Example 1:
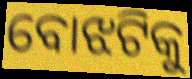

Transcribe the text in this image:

ବୋଝଟିକୁ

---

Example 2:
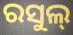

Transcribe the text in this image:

ରସୁଲ୍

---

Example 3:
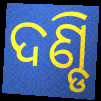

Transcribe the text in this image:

ଦଣ୍ଡି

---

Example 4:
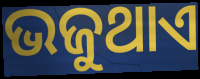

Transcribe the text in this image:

ଭଜୁଥାଏ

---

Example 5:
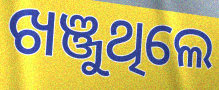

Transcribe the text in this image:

ଖଞ୍ଜୁଥିଲେ